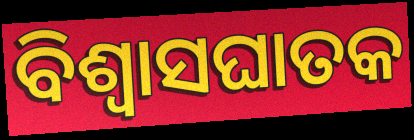
ବିଶ୍ୱାସଘାତକ